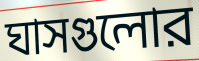
ঘাসগুলোর